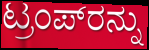
ಟ್ರಂಪ್‌ರನ್ನು